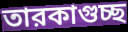
তারকাগুচ্ছ